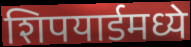
शिपयार्डमध्ये